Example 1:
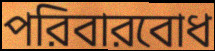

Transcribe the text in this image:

পরিবারবোধ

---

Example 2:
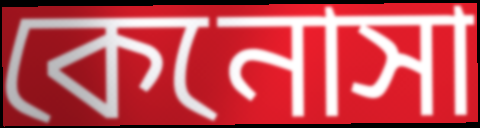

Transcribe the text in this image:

কেনোসা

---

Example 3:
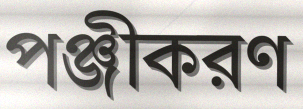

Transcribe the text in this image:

পঞ্জীকরণ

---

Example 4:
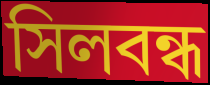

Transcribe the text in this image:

সিলবন্ধ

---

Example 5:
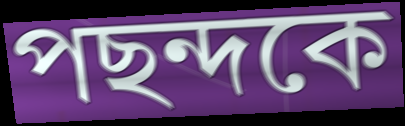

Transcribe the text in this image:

পছন্দকে